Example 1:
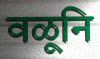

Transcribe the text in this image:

वळूनि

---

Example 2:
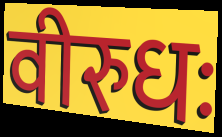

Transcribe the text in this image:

वीरुधः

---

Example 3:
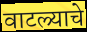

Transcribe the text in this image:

वाटल्याचे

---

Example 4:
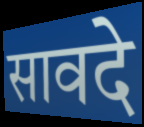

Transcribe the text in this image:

सावदे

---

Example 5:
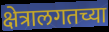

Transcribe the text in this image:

क्षेत्रालगतच्या